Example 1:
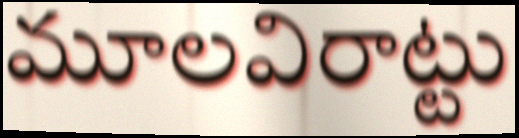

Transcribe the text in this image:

మూలవిరాట్టు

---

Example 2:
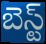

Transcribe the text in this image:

బెస్ట్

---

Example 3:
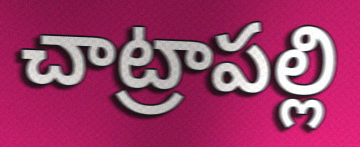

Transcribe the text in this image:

చాట్రాపల్లి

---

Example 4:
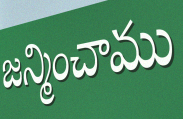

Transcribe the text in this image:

జన్మించాము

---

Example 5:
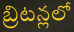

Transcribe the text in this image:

బ్రిటన్లలో